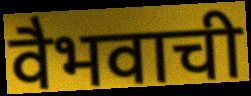
वैभवाची